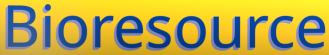
Bioresource